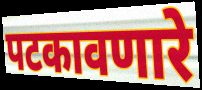
पटकावणारे